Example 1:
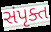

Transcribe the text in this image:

સંપૃક્ત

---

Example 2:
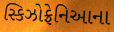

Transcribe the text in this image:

સ્કિઝોફ્રેનિઆના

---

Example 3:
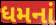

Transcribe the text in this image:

ધમનાં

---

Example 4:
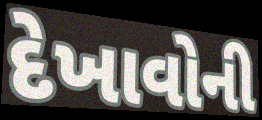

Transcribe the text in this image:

દેખાવોની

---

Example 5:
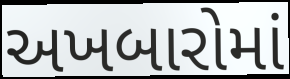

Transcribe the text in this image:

અખબારોમાં